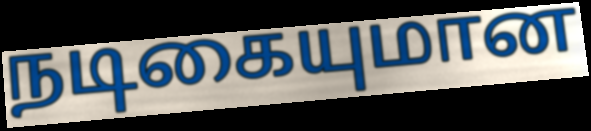
நடிகையுமான